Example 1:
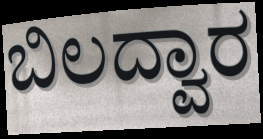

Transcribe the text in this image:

ಬಿಲದ್ವಾರ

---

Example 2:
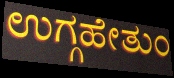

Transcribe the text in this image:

ಉಗ್ಗಹೇತುಂ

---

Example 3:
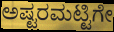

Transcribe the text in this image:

ಅಷ್ಟರಮಟ್ಟಿಗೇ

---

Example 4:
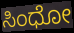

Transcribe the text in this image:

ಸಿಂಧೋ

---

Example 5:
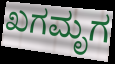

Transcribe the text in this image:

ಖಗಮೃಗ